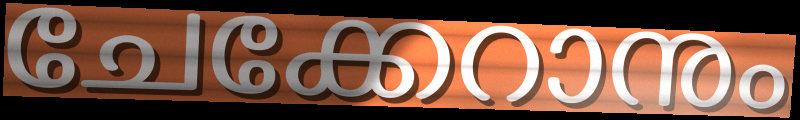
ചേക്കേറാനും